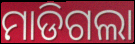
ମାଡିଗଲା